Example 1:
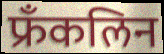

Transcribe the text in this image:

फ्रॅंकलिन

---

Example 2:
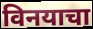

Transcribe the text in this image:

विनयाचा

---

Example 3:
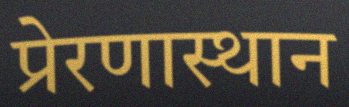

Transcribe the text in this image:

प्रेरणास्थान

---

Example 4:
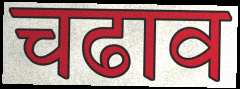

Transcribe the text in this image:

चढाव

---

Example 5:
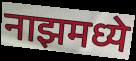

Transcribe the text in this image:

नाझमध्ये